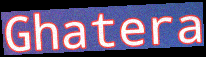
Ghatera